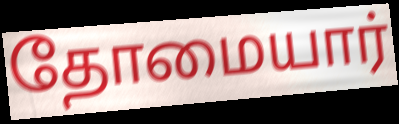
தோமையார்